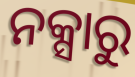
ନକ୍ସାରୁ